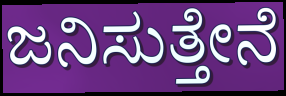
ಜನಿಸುತ್ತೇನೆ